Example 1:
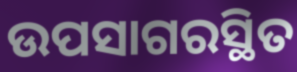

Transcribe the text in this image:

ଉପସାଗରସ୍ଥିତ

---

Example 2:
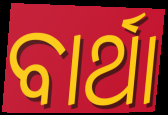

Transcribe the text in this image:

ବାର୍ଥା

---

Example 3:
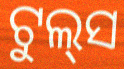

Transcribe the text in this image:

ଟୁଲ୍‌ସ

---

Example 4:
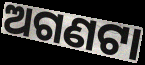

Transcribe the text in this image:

ଅଗଣଟା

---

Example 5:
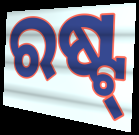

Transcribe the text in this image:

ରଷ୍ଟ୍